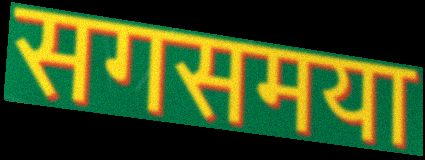
सगसमया